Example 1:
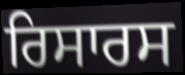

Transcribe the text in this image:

ਰਿਸਾਰਸ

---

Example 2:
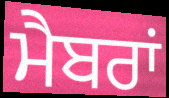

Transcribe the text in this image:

ਮੈਬਰਾਂ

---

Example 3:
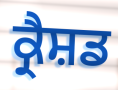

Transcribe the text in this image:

ਕ੍ਰੈਸ਼ਡ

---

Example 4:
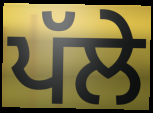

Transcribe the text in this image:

ਪੱਲੇ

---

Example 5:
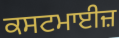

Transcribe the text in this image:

ਕਸਟਮਾਈਜ਼